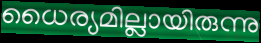
ധൈര്യമില്ലായിരുന്നു